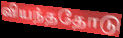
வியந்ததோடு